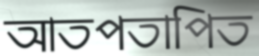
আতপতাপিত